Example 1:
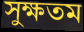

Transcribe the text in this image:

সুক্ষতম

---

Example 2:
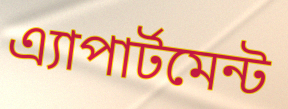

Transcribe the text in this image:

এ্যাপার্টমেন্ট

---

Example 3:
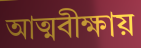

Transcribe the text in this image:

আত্মবীক্ষায়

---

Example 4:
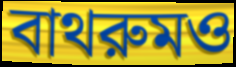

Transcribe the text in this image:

বাথরুমও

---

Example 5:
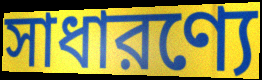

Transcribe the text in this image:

সাধারণ্যে